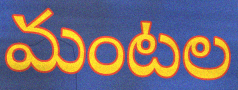
మంటల